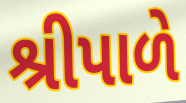
શ્રીપાળે